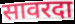
सावरदा